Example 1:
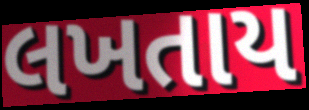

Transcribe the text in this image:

લખતાય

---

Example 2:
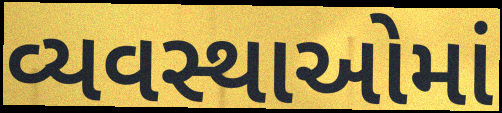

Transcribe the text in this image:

વ્યવસ્થાઓમાં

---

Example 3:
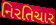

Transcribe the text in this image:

નિરતિચાર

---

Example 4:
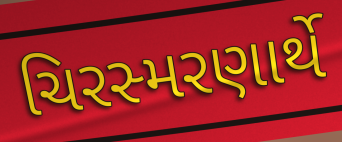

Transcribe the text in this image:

ચિરસ્મરણાર્થે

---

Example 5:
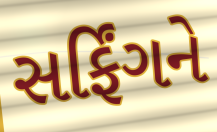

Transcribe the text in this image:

સર્ફિંગને